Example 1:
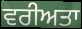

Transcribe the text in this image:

ਵਰੀਅਤਾ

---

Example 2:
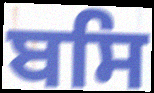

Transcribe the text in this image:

ਬਸਿ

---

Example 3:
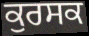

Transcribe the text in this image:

ਕੁਰਸਕ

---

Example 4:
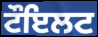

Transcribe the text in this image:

ਟੌਇਲਟ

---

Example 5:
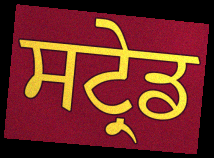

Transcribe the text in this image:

ਸਟ੍ਰੇਡ